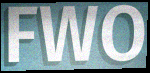
FWO